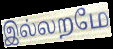
இல்லறமே